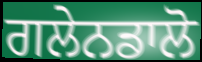
ਗਲੇਨਡਾਲੋ